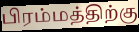
பிரம்மத்திற்கு